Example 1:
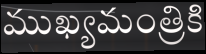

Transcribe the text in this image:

ముఖ్యమంత్రికి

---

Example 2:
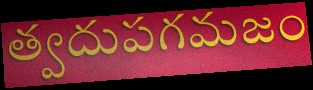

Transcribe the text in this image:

త్వదుపగమజం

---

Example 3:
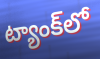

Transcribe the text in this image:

ట్యాంక్‌లో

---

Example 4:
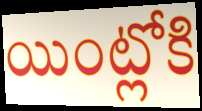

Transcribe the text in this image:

యింట్లోకి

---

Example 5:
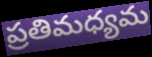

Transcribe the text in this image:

ప్రతిమధ్యమ